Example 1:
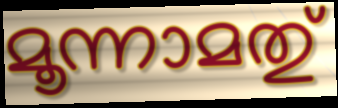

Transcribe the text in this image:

മൂന്നാമതു്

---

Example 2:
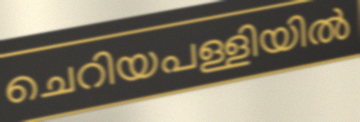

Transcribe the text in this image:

ചെറിയപള്ളിയിൽ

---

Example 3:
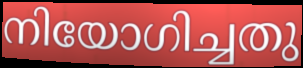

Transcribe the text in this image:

നിയോഗിച്ചതു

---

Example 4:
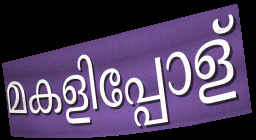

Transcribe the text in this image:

മകളിപ്പോള്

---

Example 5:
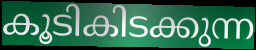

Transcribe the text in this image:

കൂടികിടക്കുന്ന